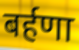
बर्हणा